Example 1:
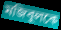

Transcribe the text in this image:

মজিবুলকে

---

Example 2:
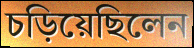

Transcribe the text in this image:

চড়িয়েছিলেন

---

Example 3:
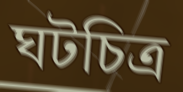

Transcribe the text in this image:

ঘটচিত্র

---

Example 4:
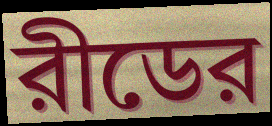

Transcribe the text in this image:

রীডের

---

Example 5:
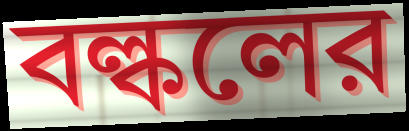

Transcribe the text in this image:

বল্কলের